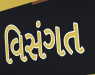
વિસંગત